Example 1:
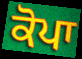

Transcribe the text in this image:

ਕੋਪਾ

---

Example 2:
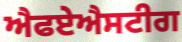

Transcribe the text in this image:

ਐਫਏਐਸਟੀਗ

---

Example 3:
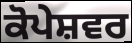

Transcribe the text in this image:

ਕੋਪੇਸ਼ਵਰ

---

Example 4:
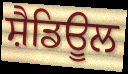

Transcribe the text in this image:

ਸ਼ੈਡਿਊਲ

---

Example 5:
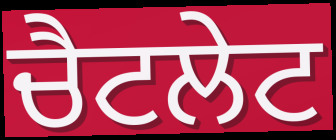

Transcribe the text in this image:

ਚੈਟਲੇਟ